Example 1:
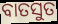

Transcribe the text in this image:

ବାତସୁତ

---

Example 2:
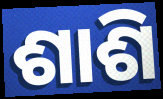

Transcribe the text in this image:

ଶାଶି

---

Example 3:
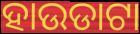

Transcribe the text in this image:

ହାଉଡାଟା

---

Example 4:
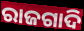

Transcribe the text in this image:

ରାଜଗାଦି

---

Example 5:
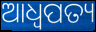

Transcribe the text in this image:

ଆଧ୍ଵପତ୍ୟ